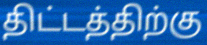
திட்டத்திற்கு